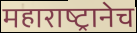
महाराष्ट्रानेच